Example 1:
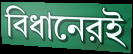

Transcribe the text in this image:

বিধানেরই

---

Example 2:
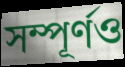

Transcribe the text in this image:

সম্পূর্ণও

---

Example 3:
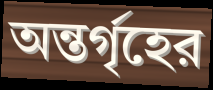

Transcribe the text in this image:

অন্তর্গৃহের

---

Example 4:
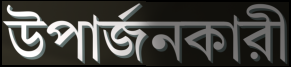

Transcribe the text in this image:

উপার্জনকারী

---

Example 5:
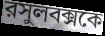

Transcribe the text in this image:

রসুলবক্সকে